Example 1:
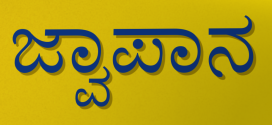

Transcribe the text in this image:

ಜ್ವಾಪಾನ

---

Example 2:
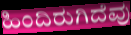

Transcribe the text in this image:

ಹಿಂದಿರುಗಿದೆವು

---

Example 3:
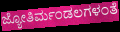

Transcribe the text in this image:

ಜ್ಯೋತಿರ್ಮಂಡಲಗಳಂತೆ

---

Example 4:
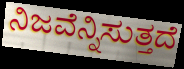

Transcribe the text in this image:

ನಿಜವೆನ್ನಿಸುತ್ತದೆ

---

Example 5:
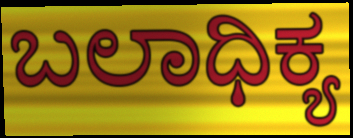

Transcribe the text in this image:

ಬಲಾಧಿಕ್ಯ